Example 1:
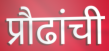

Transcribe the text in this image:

प्रौढांची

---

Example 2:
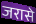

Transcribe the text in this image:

जरासे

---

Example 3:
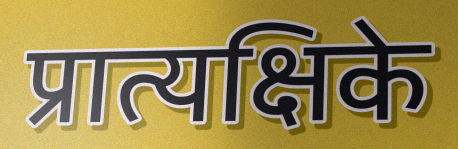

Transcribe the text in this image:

प्रात्यक्षिके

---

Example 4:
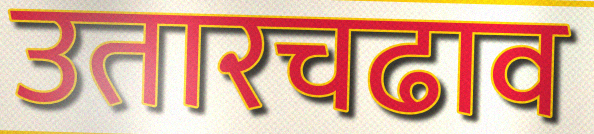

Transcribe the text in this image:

उतारचढाव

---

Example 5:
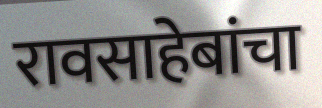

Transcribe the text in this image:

रावसाहेबांचा